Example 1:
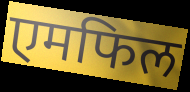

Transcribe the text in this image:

एमफिल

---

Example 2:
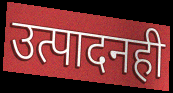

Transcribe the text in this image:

उत्पादनही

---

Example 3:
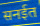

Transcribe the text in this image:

सनईत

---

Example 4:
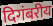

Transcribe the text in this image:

दिगंबरीय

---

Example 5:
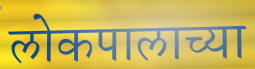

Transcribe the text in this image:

लोकपालाच्या